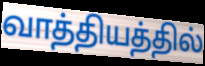
வாத்தியத்தில்